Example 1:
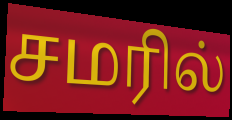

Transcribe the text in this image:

சமரில்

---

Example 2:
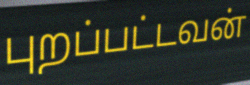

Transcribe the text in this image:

புறப்பட்டவன்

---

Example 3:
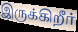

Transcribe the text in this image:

இருக்கிறீர்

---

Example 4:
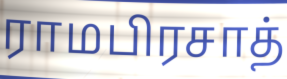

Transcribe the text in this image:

ராமபிரசாத்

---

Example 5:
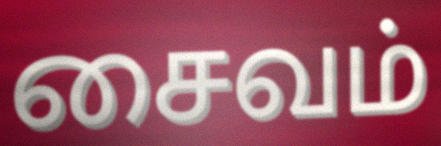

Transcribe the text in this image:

சைவம்